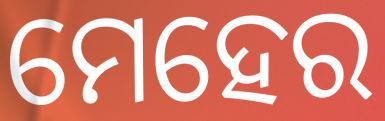
ମେହେର